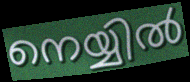
നെയ്യിൽ